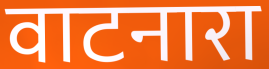
वाटनारा